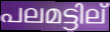
പലമട്ടില്